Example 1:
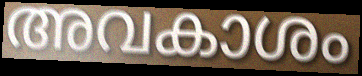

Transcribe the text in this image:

അവകാശം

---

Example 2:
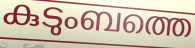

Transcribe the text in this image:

കുടുംബത്തെ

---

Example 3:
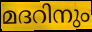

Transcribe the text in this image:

മദറിനും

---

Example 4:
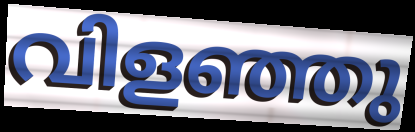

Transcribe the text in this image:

വിളഞ്ഞു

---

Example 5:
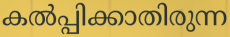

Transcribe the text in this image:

കൽപ്പിക്കാതിരുന്ന